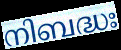
നിബദ്ധഃ